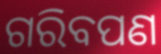
ଗରିବପଣ